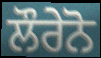
ਲੌਰੇਨੋ